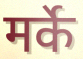
मर्के